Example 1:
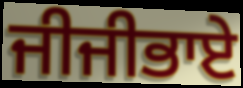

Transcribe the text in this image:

ਜੀਜੀਭਾਏ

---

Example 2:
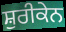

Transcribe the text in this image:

ਸ਼ੁਰੀਕੇਨ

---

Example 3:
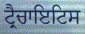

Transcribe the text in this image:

ਟ੍ਰੈਚਾਇਟਿਸ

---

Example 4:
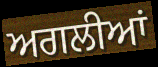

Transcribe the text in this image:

ਅਗਲੀਆਂ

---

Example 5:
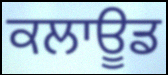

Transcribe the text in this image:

ਕਲਾਊਡ